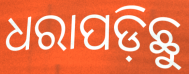
ଧରାପଡ଼ିଛୁ